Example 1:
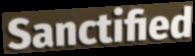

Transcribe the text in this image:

Sanctified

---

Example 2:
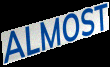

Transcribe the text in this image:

ALMOST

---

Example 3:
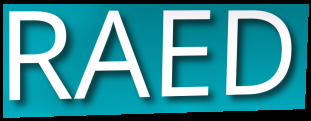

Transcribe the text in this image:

RAED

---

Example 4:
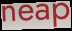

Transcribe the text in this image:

neap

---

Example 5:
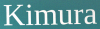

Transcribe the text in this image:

Kimura